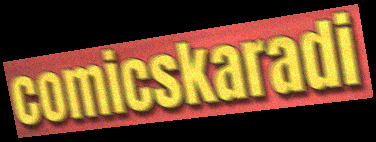
comicskaradi